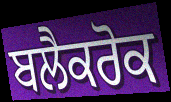
ਬਲੈਕਰੋਕ